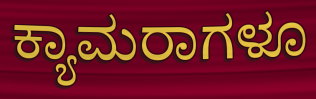
ಕ್ಯಾಮರಾಗಳೂ